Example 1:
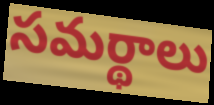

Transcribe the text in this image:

సమర్థాలు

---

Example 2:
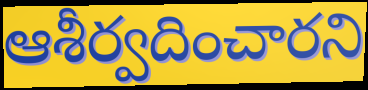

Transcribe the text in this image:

ఆశీర్వదించారని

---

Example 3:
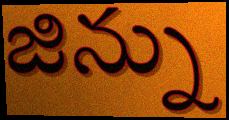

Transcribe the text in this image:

జిన్ను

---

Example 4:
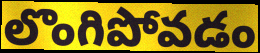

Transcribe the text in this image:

లొంగిపోవడం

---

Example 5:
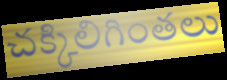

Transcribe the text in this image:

చక్కిలిగింతలు